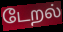
டேறல்